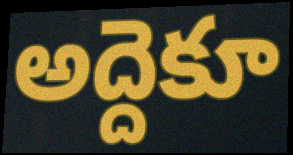
అద్దెకూ